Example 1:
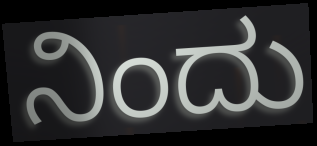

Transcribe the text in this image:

ನಿಂದು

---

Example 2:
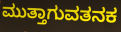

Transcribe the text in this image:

ಮುತ್ತಾಗುವತನಕ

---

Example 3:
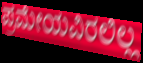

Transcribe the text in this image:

ಪ್ರಮೇಯವಿರಲಿಲ್ಲ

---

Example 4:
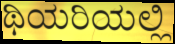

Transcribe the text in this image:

ಥಿಯರಿಯಲ್ಲಿ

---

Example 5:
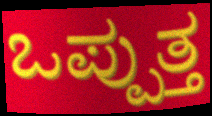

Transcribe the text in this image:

ಒಪ್ಪುತ್ತ